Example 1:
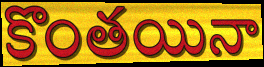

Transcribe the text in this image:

కొంతయినా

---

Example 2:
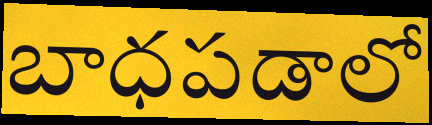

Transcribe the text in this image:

బాధపడాలో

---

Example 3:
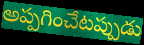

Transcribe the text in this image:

అప్పగించేటప్పుడు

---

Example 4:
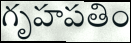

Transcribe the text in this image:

గృహపతిం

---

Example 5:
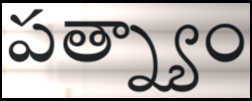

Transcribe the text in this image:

పత్న్యాం